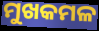
ମୁଖକମଳ